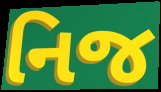
નિજ